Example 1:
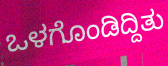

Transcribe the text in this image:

ಒಳಗೊಂಡಿದ್ದಿತು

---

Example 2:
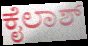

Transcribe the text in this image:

ಕೈಲಾಶ್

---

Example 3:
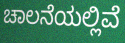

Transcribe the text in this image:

ಚಾಲನೆಯಲ್ಲಿವೆ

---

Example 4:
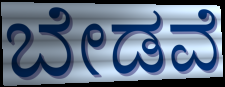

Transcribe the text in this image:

ಬೇಡವೆ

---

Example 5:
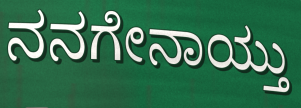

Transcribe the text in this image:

ನನಗೇನಾಯ್ತು